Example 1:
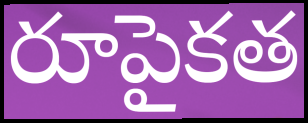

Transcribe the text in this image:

రూపైకత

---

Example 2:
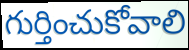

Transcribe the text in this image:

గుర్తించుకోవాలి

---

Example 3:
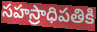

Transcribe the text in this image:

సహస్రాధిపతికి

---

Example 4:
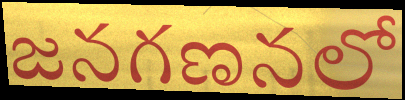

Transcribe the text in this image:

జనగణనలో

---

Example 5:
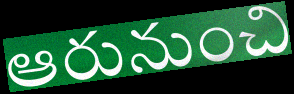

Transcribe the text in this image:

ఆరునుంచి